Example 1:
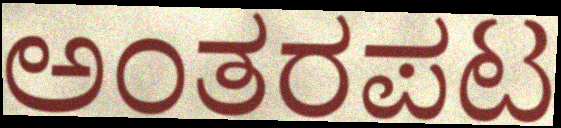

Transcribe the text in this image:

ಅಂತರಪಟ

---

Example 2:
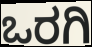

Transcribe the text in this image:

ಒರಗಿ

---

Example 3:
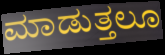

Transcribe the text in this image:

ಮಾಡುತ್ತಲೂ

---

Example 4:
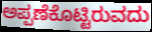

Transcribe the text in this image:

ಅಪ್ಪಣೆಕೊಟ್ಟಿರುವದು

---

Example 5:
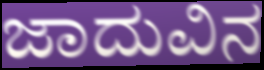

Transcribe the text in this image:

ಜಾದುವಿನ